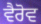
ਵੈਰੋਵ